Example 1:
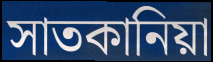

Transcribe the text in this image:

সাতকানিয়া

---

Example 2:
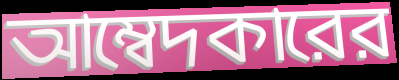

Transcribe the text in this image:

আম্বেদকারের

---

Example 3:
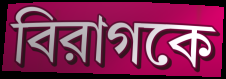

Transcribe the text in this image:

বিরাগকে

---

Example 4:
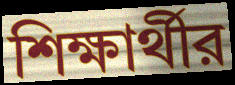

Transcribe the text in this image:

শিক্ষার্থীর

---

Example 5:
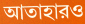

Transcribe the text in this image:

আতাহারও